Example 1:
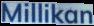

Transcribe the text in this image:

Millikan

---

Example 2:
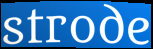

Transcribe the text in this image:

strode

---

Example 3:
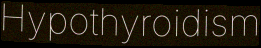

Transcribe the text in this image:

Hypothyroidism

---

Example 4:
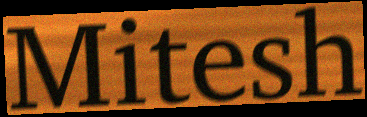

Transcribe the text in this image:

Mitesh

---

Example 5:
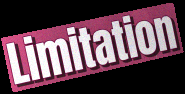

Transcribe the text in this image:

Limitation